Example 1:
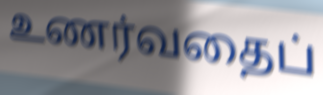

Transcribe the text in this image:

உணர்வதைப்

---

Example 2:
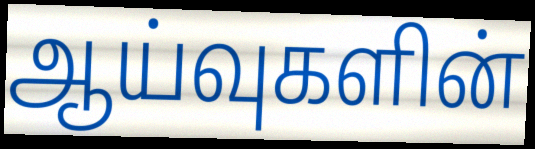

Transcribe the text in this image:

ஆய்வுகளின்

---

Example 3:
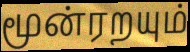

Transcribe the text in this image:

மூன்ரறயும்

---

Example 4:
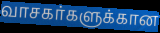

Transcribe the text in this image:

வாசகர்களுக்கான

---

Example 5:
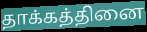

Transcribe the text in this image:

தாக்கத்தினை